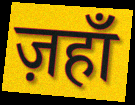
ज़हाँ